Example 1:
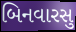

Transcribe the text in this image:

બિનવારસુ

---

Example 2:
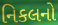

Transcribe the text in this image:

નિકલનો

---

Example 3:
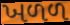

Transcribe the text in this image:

ખળળ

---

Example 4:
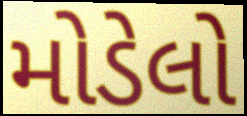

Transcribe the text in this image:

મોડેલો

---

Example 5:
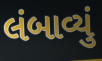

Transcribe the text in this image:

લંબાવ્યું